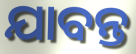
ଯାବନ୍ତ